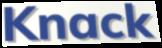
Knack